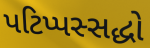
પટિપ્પસ્સદ્ધો